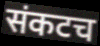
संकटच